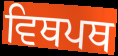
ਵਿਥਪਥ